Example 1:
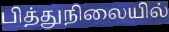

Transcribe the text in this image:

பித்துநிலையில்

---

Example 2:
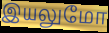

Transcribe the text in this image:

இயலுமோ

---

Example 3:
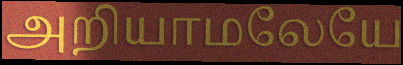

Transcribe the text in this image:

அறியாமலேயே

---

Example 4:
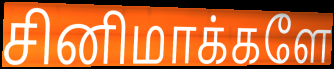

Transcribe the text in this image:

சினிமாக்களே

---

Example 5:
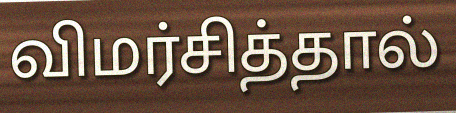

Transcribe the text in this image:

விமர்சித்தால்